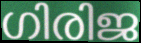
ഗിരിജ